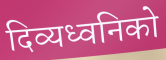
दिव्यध्वनिको